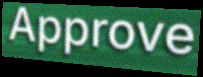
Approve